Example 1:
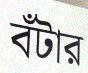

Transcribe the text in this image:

বঁটার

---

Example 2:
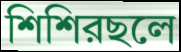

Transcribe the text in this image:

শিশিরছলে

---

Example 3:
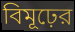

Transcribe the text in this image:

বিমূঢ়ের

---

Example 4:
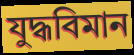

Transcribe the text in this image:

যুদ্ধবিমান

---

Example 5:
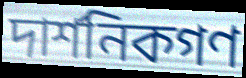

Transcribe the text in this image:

দার্শনিকগণ